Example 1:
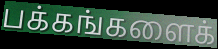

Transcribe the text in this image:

பக்கங்களைக்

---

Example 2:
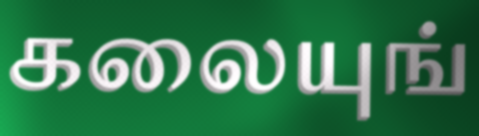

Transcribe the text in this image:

கலையுங்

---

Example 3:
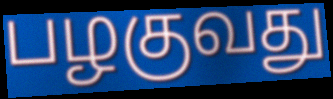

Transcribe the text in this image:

பழகுவது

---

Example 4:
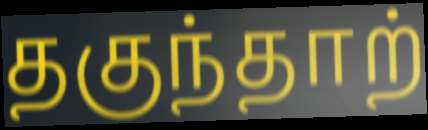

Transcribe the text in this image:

தகுந்தாற்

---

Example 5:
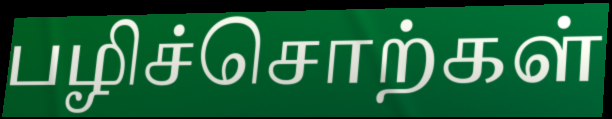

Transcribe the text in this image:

பழிச்சொற்கள்